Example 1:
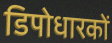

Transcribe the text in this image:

डिपोधारकों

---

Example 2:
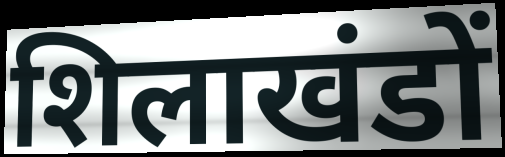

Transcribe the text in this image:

शिलाखंडों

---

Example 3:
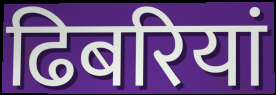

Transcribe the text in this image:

ढिबरियां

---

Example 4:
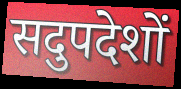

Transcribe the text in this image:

सदुपदेशों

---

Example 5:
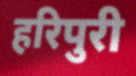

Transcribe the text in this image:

हरिपुरी